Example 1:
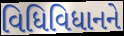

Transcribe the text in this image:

વિધિવિધાનને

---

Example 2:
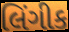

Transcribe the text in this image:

લિંગીક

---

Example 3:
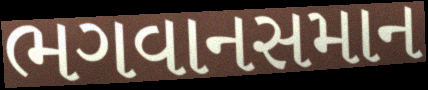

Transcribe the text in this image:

ભગવાનસમાન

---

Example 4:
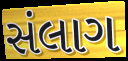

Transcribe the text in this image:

સંલાગ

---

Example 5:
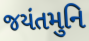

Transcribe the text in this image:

જયંતમુનિ